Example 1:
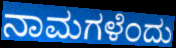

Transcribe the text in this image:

ನಾಮಗಳೆಂದು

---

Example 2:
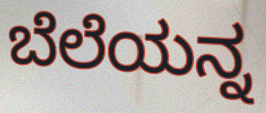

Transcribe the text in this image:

ಬೆಲೆಯನ್ನ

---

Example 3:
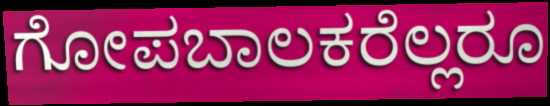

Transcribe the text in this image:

ಗೋಪಬಾಲಕರೆಲ್ಲರೂ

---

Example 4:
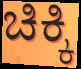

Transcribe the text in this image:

ಚಿಕ್ಕಿ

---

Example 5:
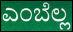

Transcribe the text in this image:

ಎಂಬೆಲ್ಲ